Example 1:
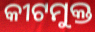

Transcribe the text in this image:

କୀଟମୁକ୍ତ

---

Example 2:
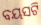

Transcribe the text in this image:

ବୟସଟି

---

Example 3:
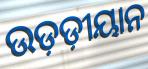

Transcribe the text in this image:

ଉଡ଼ଡ଼ୀୟାନ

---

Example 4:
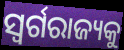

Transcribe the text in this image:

ସ୍ଵର୍ଗରାଜ୍ୟକୁ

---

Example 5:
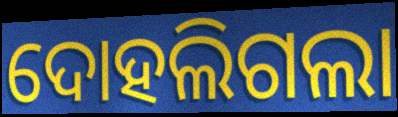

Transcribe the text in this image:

ଦୋହଲିଗଲା